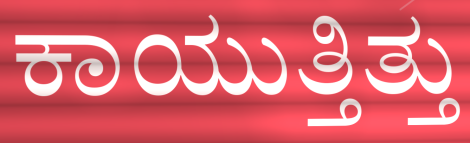
ಕಾಯುತ್ತಿತ್ತು